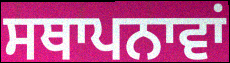
ਸਥਾਪਨਾਵਾਂ